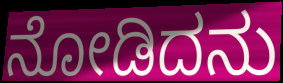
ನೋಡಿದನು